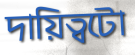
দায়িত্বটো